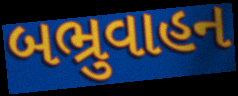
બભ્રુવાહન